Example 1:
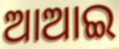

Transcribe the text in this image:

ଆଆଇ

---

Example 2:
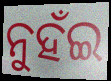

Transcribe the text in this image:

ନୁହଁଇ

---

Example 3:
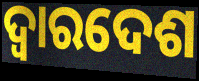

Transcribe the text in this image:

ଦ୍ୱାରଦେଶ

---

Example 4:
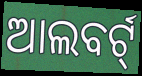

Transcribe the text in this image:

ଆଲବର୍ଟ୍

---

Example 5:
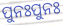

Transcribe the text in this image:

ପୁନଃପୁନଃ